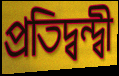
প্ৰতিদ্বন্দ্বী